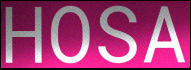
HOSA